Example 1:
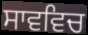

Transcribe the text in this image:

ਸਾਵਵਿਚ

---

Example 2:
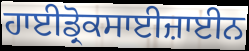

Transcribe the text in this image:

ਹਾਈਡ੍ਰੋਕਸਾਈਜ਼ਾਈਨ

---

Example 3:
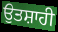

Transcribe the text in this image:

ਉਤਸ਼ਾਹੀ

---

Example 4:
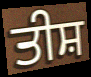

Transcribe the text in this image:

ਤੀਸ਼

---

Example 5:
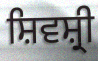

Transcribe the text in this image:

ਸ਼ਿਵਸ਼੍ਰੀ